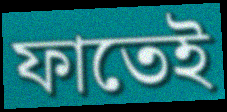
ফাতেই